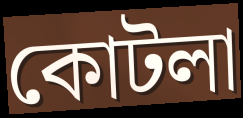
কোটলা